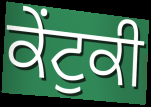
ਕੇਂਟੁਕੀ